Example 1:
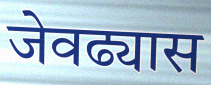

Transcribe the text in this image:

जेवढ्यास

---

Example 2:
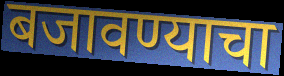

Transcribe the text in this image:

बजावण्याचा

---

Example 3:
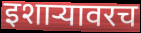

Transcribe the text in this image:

इशाऱ्यावरच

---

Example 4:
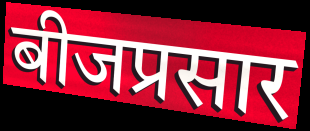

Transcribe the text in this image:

बीजप्रसार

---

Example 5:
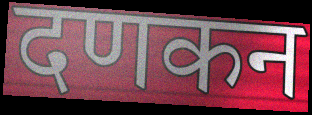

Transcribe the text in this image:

दणकन